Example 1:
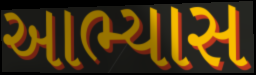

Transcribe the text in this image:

આભ્યાસ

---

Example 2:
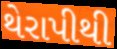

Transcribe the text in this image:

થેરાપીથી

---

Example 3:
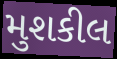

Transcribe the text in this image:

મુશકીલ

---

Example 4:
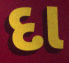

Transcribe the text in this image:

દા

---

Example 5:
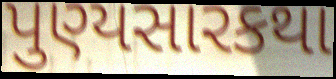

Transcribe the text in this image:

પુણ્યસારકથા